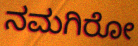
ನಮಗಿರೋ